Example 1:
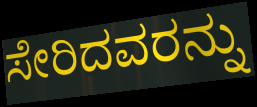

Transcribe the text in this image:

ಸೇರಿದವರನ್ನು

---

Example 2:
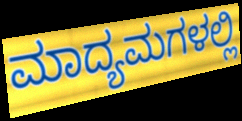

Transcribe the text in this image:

ಮಾದ್ಯಮಗಳಲ್ಲಿ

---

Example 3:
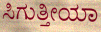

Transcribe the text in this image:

ಸಿಗುತ್ತೀಯಾ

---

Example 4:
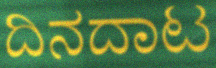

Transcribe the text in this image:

ದಿನದಾಟ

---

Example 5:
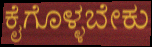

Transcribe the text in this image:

ಕೈಗೊಳ್ಳಬೇಕು